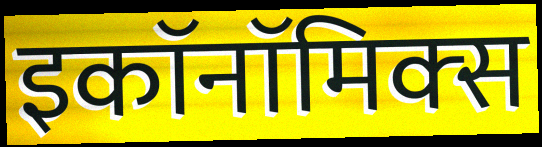
इकॉनॉमिक्‍स